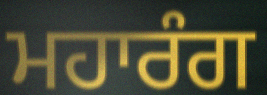
ਮਹਾਰੰਗ